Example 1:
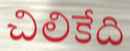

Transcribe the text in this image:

చిలికేది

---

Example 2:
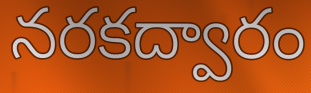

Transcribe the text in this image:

నరకద్వారం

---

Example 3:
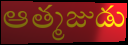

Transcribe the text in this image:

ఆత్మజుడు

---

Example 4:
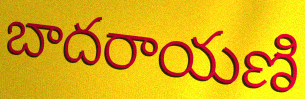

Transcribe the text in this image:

బాదరాయణి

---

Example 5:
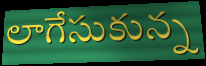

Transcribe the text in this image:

లాగేసుకున్న